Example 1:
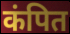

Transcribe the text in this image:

कंपित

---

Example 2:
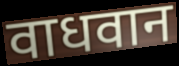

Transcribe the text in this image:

वाधवान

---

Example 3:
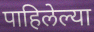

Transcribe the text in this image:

पाहिलेल्या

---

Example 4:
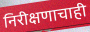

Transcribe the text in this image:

निरीक्षणाचाही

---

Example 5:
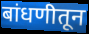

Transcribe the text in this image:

बांधणीतून